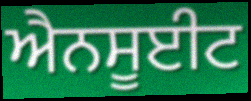
ਐਨਸੂਈਟ